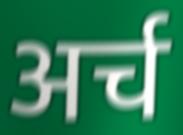
अर्च